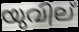
യുവില്